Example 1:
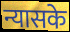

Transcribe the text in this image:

न्यासके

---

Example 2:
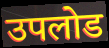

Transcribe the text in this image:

उपलोड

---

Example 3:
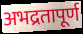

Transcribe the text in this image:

अभद्रतापूर्ण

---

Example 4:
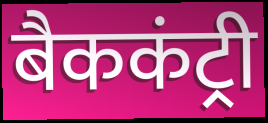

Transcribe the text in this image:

बैककंट्री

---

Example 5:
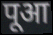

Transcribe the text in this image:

पूआ